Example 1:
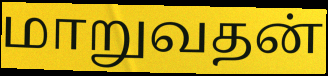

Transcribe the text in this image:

மாறுவதன்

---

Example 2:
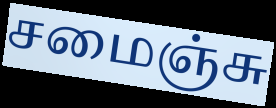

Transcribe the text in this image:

சமைஞ்சு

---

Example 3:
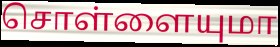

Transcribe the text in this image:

சொள்ளையுமா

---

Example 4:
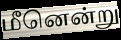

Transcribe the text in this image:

மீனென்று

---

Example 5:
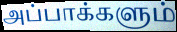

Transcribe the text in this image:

அப்பாக்களும்